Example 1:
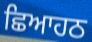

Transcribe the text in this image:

ਛਿਆਹਠ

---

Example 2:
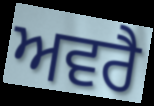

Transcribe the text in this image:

ਅਵਰੈ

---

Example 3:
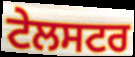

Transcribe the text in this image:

ਟੇਲਸਟਰ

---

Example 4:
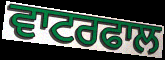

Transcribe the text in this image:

ਵਾਟਰਫਾਲ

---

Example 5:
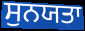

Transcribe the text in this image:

ਸੁਨਯਤਾ